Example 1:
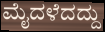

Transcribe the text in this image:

ಮೈದಳೆದದ್ದು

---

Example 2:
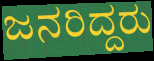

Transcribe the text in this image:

ಜನರಿದ್ದರು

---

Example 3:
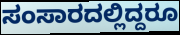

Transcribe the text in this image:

ಸಂಸಾರದಲ್ಲಿದ್ದರೂ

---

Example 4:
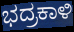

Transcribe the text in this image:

ಭದ್ರಕಾಳಿ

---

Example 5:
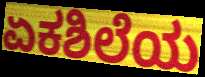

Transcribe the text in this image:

ಏಕಶಿಲೆಯ